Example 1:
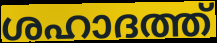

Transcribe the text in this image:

ശഹാദത്ത്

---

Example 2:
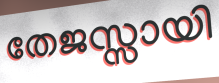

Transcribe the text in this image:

തേജസ്സായി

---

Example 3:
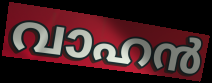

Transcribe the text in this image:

വാഹൻ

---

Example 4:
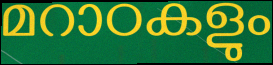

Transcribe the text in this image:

മറാഠകളും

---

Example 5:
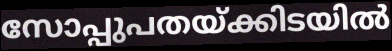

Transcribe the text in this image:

സോപ്പുപതയ്ക്കിടയിൽ